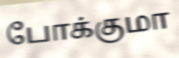
போக்குமா